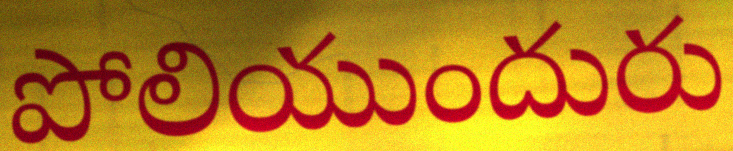
పోలియుందురు